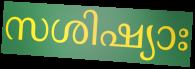
സശിഷ്യാഃ